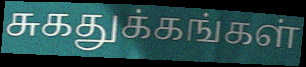
சுகதுக்கங்கள்